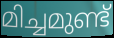
മിച്ചമുണ്ട്